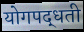
योगपद्धती